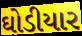
ઘોડીયાર